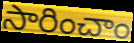
సారించాం